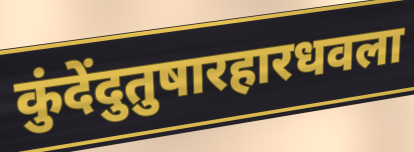
कुंदेंदुतुषारहारधवला